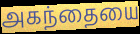
அகந்தையை